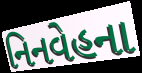
નિનવેહના